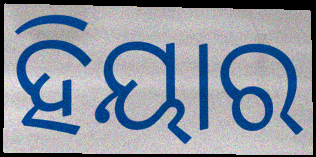
ହିୟାର